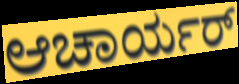
ಆಚಾರ್ಯರ್